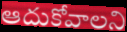
ఆదుకోవాలని